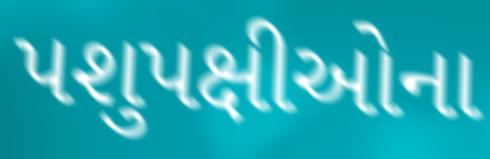
પશુપક્ષીઓના